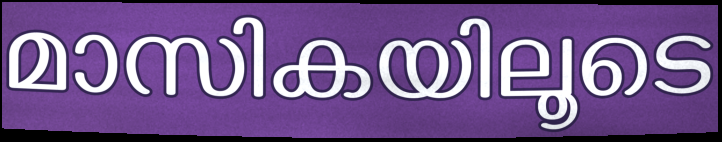
മാസികയിലൂടെ